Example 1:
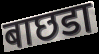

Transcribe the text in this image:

बाछडा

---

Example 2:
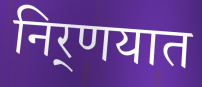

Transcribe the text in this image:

निर्णयात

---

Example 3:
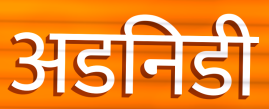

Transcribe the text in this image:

अडनिडी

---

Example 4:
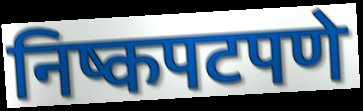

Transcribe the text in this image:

निष्कपटपणे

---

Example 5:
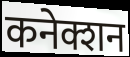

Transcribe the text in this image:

कनेक्‍शन